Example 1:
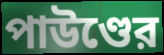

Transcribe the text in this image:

পাউণ্ডের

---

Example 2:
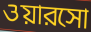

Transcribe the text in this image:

ওয়ারসো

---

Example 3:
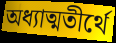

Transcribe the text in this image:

অধ্যাত্মতীর্থে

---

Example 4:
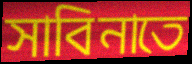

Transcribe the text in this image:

সাবিনাতে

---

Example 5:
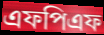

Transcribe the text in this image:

এফপিএফ